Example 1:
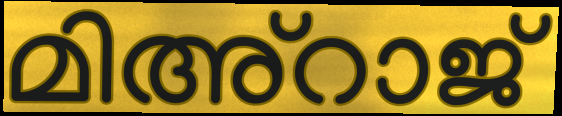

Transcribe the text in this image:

മിഅ്റാജ്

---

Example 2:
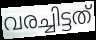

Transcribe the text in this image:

വരച്ചിട്ടത്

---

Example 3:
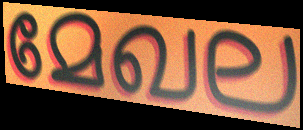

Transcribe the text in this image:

മേഖല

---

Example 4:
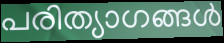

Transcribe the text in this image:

പരിത്യാഗങ്ങൾ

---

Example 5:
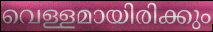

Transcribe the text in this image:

വെള്ളമായിരിക്കും